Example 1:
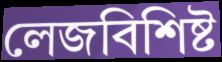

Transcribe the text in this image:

লেজবিশিষ্ট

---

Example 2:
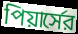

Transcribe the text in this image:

পিয়ার্সের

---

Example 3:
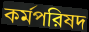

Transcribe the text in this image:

কর্মপরিষদ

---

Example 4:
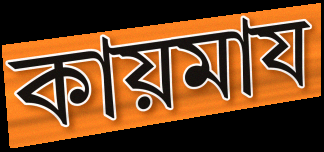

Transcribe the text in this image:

কায়মায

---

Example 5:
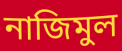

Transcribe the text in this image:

নাজিমুল